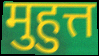
मुहुत्त